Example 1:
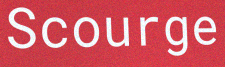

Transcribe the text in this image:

Scourge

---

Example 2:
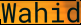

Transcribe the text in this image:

Wahid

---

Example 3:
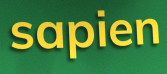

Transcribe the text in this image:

sapien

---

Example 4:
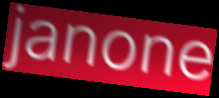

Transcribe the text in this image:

janone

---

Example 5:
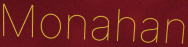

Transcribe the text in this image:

Monahan